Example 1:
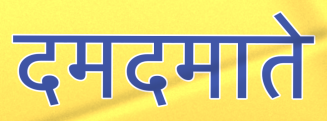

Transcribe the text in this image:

दमदमाते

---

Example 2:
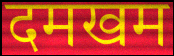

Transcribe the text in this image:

दमखम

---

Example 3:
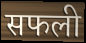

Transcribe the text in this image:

सफली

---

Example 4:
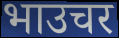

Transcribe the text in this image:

भाउचर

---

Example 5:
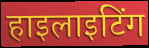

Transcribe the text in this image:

हाइलाइटिंग